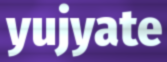
yujyate